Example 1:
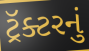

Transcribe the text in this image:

ટ્રૅક્ટરનું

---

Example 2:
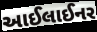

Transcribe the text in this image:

આઈલાઈનર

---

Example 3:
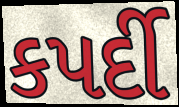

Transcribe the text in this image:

કપર્દી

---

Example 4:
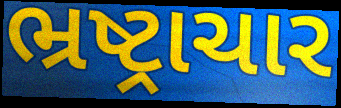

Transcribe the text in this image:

ભ્રષ્ટ્રાચાર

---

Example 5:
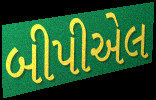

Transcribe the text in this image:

બીપીએલ